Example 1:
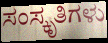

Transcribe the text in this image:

ಸಂಸ್ಕೃತಿಗಳು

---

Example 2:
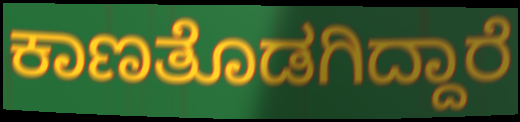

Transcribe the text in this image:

ಕಾಣತೊಡಗಿದ್ದಾರೆ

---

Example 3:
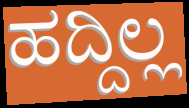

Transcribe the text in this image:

ಹದ್ದಿಲ್ಲ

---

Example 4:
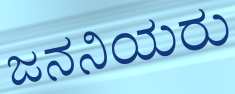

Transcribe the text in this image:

ಜನನಿಯರು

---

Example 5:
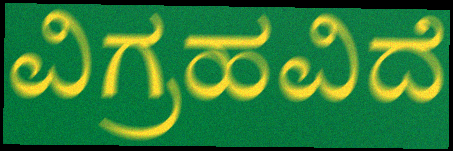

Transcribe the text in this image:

ವಿಗ್ರಹವಿದೆ